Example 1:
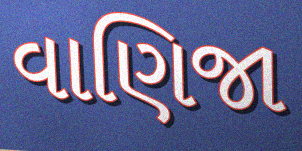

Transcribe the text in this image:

વાણિજા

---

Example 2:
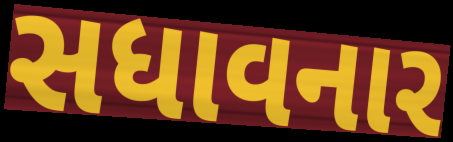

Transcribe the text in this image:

સધાવનાર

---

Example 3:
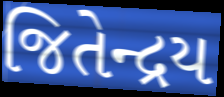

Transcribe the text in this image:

જિતેન્દ્રય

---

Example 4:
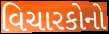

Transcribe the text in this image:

વિચારકોનો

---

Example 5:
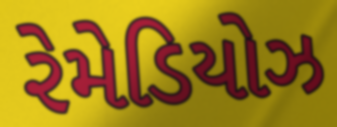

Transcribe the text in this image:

રેમેડિયોઝ